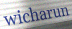
wicharun